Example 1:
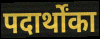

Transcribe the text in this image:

पदार्थोंका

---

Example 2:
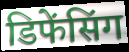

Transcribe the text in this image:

डिफेंसिंग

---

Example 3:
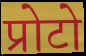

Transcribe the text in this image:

प्रोटो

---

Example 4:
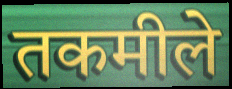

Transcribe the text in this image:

तकमीले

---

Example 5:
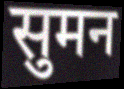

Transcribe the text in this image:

सुमन